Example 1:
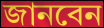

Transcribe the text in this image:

জানবেন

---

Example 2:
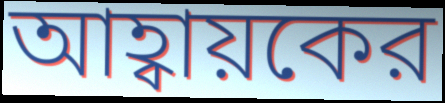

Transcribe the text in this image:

আহ্বায়কের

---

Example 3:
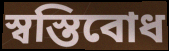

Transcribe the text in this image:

স্বস্তিবোধ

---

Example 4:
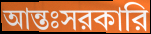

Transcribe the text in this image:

আন্তঃসরকারি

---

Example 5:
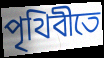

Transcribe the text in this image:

পৃথিবীতে